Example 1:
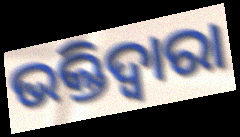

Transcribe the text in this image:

ଭକ୍ତିଦ୍ଵାରା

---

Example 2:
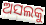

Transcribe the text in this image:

ଅସଲକୁ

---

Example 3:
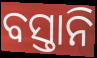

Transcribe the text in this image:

ବସ୍ତାନି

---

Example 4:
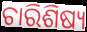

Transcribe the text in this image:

ଚାରିଶିଷ୍ୟ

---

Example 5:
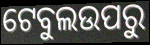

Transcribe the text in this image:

ଟେବୁଲଉପରୁ